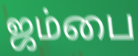
ஜம்பை